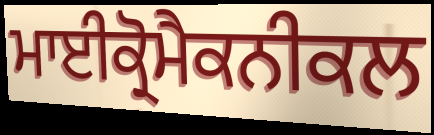
ਮਾਈਕ੍ਰੋਮੈਕਨੀਕਲ